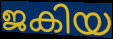
ജകിയ